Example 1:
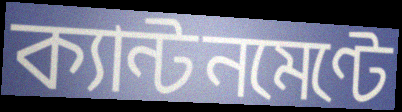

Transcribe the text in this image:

ক্যান্টনমেণ্টে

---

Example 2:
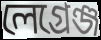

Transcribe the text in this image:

লেগ্রেঞ্জ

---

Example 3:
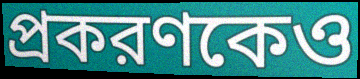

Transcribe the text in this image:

প্রকরণকেও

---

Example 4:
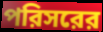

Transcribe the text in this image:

পরিসরের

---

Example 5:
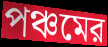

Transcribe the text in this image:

পঞ্চমের